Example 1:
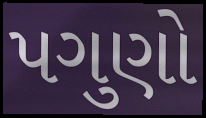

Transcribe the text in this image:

પગુણો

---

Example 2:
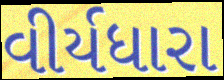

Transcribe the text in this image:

વીર્યધારા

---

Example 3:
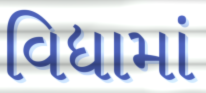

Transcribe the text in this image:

વિદ્યામાં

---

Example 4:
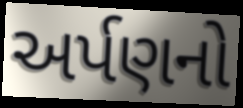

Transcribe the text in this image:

અર્પણનો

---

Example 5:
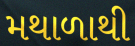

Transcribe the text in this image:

મથાળાથી